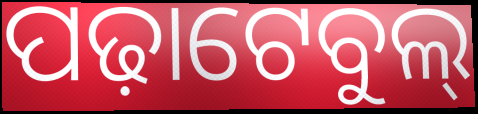
ପଢ଼ାଟେବୁଲ୍